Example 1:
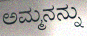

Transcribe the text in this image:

ಅಮ್ಮನನ್ನು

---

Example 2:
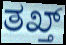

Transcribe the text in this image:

ತಖ್ತ್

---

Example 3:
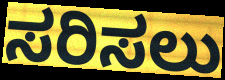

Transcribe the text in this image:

ಸರಿಸಲು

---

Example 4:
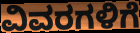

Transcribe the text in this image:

ವಿವರಗಳಿಗೆ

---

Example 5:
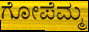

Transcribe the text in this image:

ಗೋಪೆಮ್ಮ